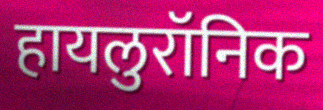
हायलुरॉनिक